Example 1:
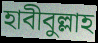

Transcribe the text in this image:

হাবীবুল্লাহ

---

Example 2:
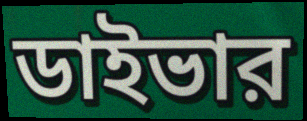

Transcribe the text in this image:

ডাইভার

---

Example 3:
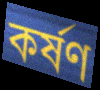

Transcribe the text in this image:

কর্ষণ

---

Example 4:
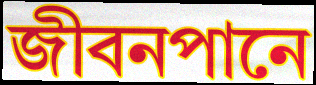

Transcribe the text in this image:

জীবনপানে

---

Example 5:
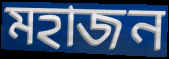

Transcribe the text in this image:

মহাজন